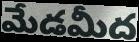
మేడమీద